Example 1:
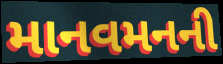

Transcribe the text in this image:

માનવમનની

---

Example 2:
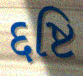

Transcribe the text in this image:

દ્દષ્ટિ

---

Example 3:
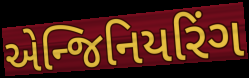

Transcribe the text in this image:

એન્જિનિયરિંગ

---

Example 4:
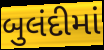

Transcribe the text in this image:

બુલંદીમાં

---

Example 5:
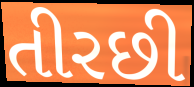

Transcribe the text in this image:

તીરછી